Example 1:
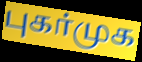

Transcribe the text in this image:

புகர்முக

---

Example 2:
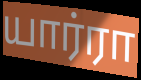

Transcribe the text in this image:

யார்ரா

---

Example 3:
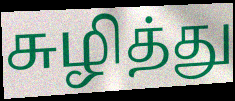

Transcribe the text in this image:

சுழித்து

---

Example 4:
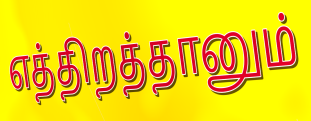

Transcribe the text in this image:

எத்திறத்தானும்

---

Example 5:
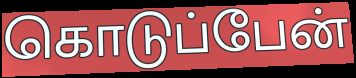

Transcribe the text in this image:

கொடுப்பேன்